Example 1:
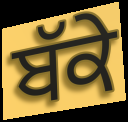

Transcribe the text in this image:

ਬੱਕੇ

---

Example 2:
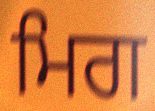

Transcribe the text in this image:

ਮਿਗ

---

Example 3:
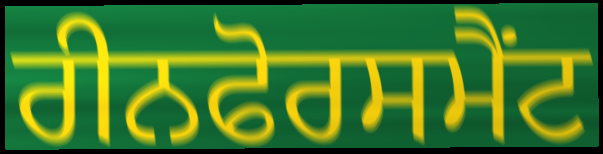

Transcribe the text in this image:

ਰੀਨਫੋਰਸਮੈਂਟ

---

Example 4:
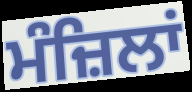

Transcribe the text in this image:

ਮੰਜ਼ਿਲਾਂ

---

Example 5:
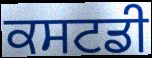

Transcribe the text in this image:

ਕਸਟਡੀ